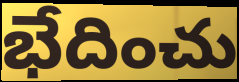
భేదించు